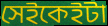
সেইকেইটা